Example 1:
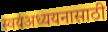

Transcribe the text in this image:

स्वयंअध्ययनासाठी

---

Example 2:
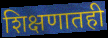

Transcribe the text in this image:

शिक्षणातही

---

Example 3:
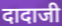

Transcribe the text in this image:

दादाजी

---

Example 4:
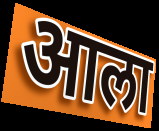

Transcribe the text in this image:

आला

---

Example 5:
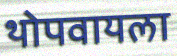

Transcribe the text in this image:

थोपवायला